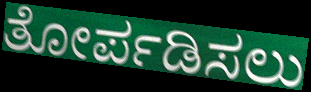
ತೋರ್ಪಡಿಸಲು